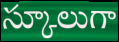
స్కూలుగా